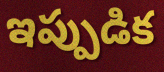
ఇప్పుడిక